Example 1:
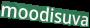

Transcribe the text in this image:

moodisuva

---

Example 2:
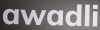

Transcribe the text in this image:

awadli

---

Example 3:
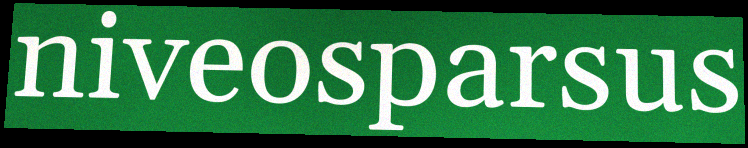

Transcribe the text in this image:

niveosparsus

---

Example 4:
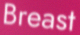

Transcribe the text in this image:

Breast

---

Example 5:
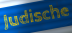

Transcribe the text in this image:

Judische